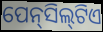
ପେନ୍‍ସିଲ୍‍ଟିଏ